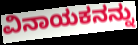
ವಿನಾಯಕನನ್ನು